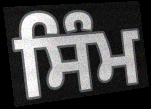
ਸਿੰਮ